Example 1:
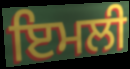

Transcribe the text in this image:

ਇਮਲੀ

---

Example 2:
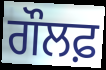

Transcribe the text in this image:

ਗੌਲਫ਼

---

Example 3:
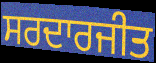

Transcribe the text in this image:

ਸਰਦਾਰਜੀਤ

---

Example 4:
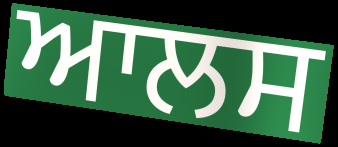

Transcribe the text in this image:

ਆਲਸ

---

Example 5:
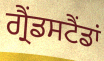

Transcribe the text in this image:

ਗ੍ਰੈਂਡਸਟੈਂਡਾਂ